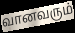
வானவரும்